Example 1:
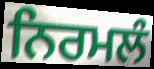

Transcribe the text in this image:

ਨਿਰਮਲੰ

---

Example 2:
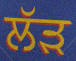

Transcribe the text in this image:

ਲੱੜ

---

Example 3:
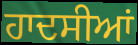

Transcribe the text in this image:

ਹਾਦਸੀਆਂ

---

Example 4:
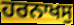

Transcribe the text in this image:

ਹਰਨਾਖਸੁ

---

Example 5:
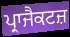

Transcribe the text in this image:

ਪ੍ਰਾਜੈਕਟਜ਼